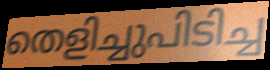
തെളിച്ചുപിടിച്ച